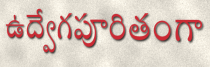
ఉద్వేగపూరితంగా